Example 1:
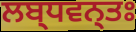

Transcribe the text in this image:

ਲਬ੍ਧਵਨ੍ਤਃ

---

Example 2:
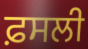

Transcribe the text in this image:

ਫ਼ਸਲੀ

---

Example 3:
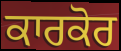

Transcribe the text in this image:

ਕਾਰਕੋਰ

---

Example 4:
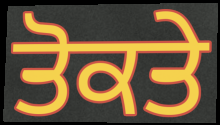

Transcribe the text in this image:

ਤੋਕਤੇ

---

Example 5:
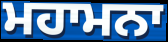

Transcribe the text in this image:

ਮਹਾਮਨਾ